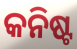
କନିଷ୍ଟ